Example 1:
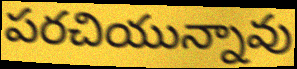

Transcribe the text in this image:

పరచియున్నావు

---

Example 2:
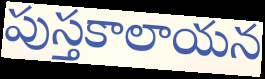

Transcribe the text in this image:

పుస్తకాలాయన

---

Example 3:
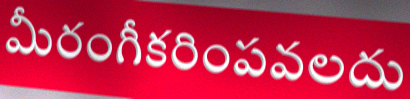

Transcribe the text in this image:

మీరంగీకరింపవలదు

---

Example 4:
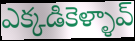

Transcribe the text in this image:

ఎక్కడికెళ్ళావ్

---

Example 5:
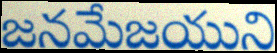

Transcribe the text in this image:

జనమేజయుని